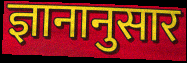
ज्ञानानुसार